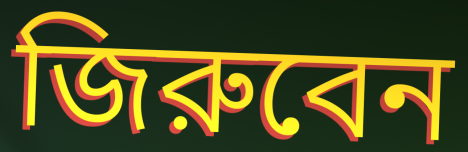
জিরুবেন